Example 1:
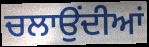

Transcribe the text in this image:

ਚਲਾਉਂਦੀਆਂ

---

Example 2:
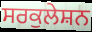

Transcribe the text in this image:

ਸਰਕੁਲੇਸ਼ਨ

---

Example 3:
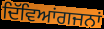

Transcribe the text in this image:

ਦਿੱਵਿਆਂਗਜਨਾਂ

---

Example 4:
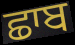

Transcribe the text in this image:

ਛਾਬ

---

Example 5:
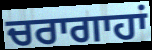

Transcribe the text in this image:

ਚਰਾਗਾਹਾਂ